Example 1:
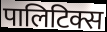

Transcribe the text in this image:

पालिटिक्स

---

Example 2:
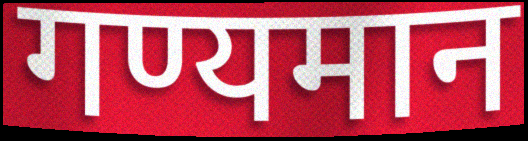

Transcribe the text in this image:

गण्यमान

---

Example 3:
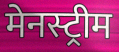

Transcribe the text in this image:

मेनस्‍ट्रीम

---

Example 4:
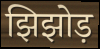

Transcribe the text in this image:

झिझोड़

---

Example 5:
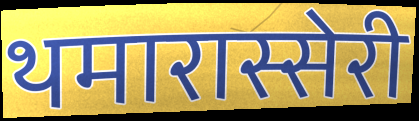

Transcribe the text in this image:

थमारास्सेरी